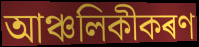
আঞ্চলিকীকৰণ